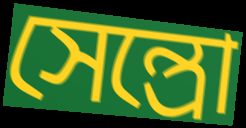
সেন্ত্রো